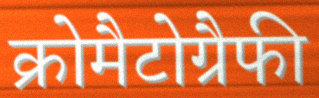
क्रोमैटोग्रैफी